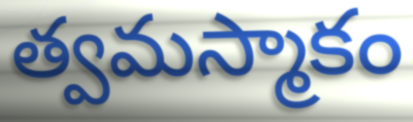
త్వమస్మాకం